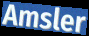
Amsler